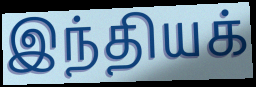
இந்தியக்